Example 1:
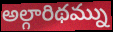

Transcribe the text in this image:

అల్గారిథమ్ను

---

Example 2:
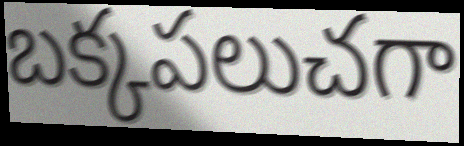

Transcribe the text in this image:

బక్కపలుచగా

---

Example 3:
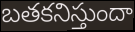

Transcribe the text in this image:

బతకనిస్తుందా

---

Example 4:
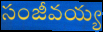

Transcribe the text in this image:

సంజీవయ్య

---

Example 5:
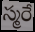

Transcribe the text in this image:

స్మరే